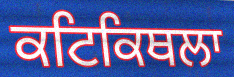
ਕਟਿਕਿਥਲਾ